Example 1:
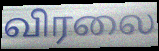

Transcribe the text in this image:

விரலை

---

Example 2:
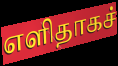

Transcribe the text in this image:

எளிதாகச்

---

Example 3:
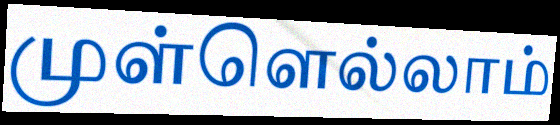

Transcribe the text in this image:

முள்ளெல்லாம்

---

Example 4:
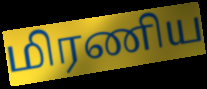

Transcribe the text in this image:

மிரணிய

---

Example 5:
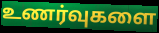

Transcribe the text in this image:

உணர்வுகளை